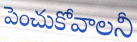
పెంచుకోవాలనీ